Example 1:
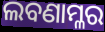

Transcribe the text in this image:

ଲବଣାମ୍ଳର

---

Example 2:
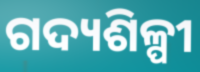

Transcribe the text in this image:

ଗଦ୍ୟଶିଳ୍ପୀ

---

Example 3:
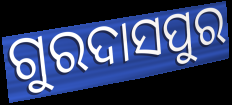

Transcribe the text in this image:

ଗୁରଦାସପୁର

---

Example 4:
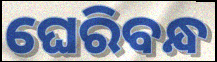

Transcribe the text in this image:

ଘେରିବନ୍ଧ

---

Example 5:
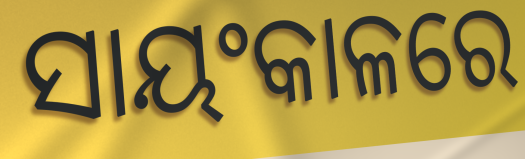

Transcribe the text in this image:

ସାୟଂକାଳରେ